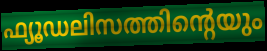
ഫ്യൂഡലിസത്തിന്റെയും